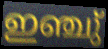
ഇഞ്ചു്